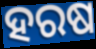
ହରଷ